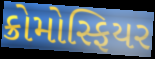
ક્રોમોસ્ફિયર